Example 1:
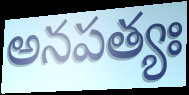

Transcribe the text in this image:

అనపత్యః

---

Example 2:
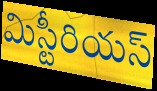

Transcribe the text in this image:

మిస్టీరియస్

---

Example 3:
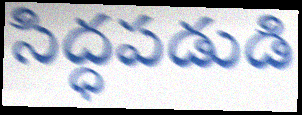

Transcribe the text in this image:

సిద్ధపడుడి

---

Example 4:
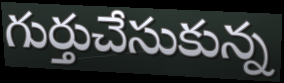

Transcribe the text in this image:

గుర్తుచేసుకున్న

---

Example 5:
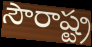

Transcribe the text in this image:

సౌరాష్ట్ర